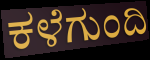
ಕಳೆಗುಂದಿ